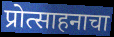
प्रोत्साहनाचा